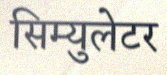
सिम्युलेटर